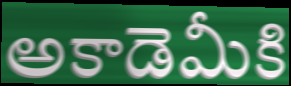
అకాడెమీకి